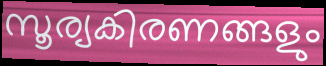
സൂര്യകിരണങ്ങളും